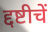
द्दष्टीचें